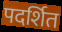
पदर्शित